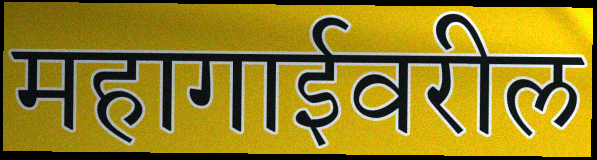
महागाईवरील